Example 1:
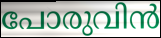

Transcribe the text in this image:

പോരുവിൻ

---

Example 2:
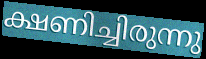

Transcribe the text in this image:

ക്ഷണിച്ചിരുന്നു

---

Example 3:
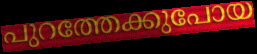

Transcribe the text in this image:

പുറത്തേക്കുപോയ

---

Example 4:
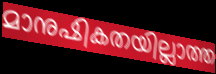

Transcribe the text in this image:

മാനുഷികതയില്ലാത്ത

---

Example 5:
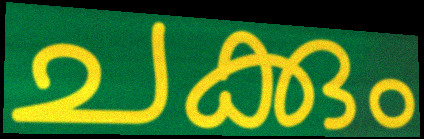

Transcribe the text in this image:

ചക്കും